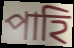
পাহি